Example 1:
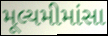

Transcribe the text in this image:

મૂલ્યમીમાંસા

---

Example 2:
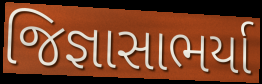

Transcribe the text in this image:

જિજ્ઞાસાભર્યા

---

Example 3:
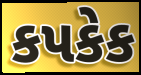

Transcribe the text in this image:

કપકેક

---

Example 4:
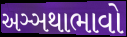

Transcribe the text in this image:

અઞ્ઞથાભાવો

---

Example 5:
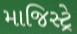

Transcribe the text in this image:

માજિસ્ટ્રે